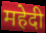
महेदी